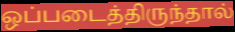
ஒப்படைத்திருந்தால்